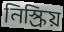
নিস্ক্রিয়